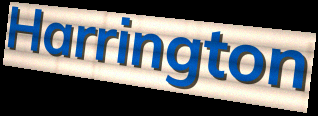
Harrington